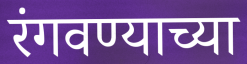
रंगवण्याच्या